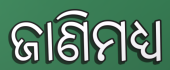
ଜାଣିମଧ୍ୟ